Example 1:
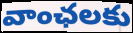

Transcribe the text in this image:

వాంఛలకు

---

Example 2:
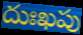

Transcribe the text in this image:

దుఃఖపు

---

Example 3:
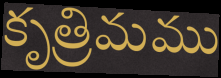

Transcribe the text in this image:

కృత్రిమము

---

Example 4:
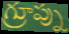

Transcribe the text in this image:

గ్రూప్ను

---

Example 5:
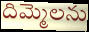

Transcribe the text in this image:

దిమ్మెలను